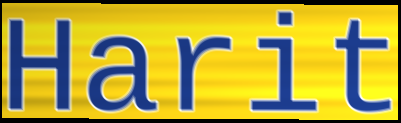
Harit